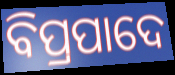
ବିପ୍ରପାଦେ